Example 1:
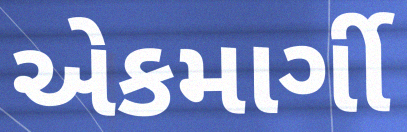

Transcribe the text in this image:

એકમાર્ગી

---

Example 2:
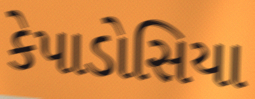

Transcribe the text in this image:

કેપાડોસિયા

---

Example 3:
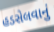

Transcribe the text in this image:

હડસેલવાનું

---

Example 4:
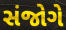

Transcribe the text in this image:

સંજોગે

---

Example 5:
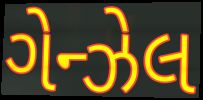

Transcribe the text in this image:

ગેન્ઝેલ